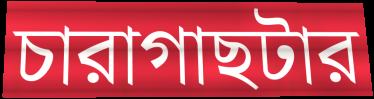
চারাগাছটার